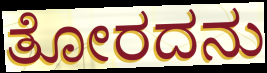
ತೋರದನು